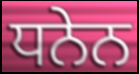
ਧਨੇਨ